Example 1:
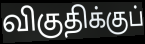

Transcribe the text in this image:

விகுதிக்குப்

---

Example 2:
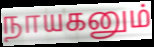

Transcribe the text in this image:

நாயகனும்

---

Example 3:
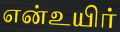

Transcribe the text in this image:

என்உயிர்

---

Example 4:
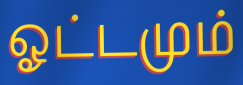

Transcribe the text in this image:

ஓட்டமும்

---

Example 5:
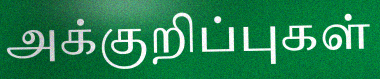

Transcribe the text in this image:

அக்குறிப்புகள்